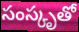
సంస్కృతో